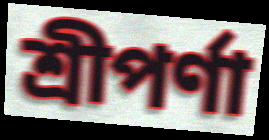
শ্রীপর্ণা